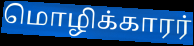
மொழிக்காரர்